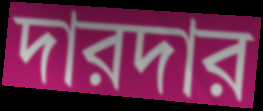
দারদার